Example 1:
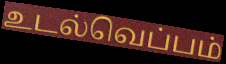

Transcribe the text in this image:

உடல்வெப்பம்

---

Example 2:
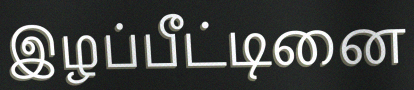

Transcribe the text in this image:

இழப்பீட்டினை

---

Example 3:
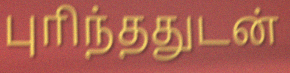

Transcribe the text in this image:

புரிந்ததுடன்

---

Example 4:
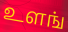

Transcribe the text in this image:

உளங்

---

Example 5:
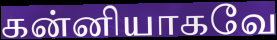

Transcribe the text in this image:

கன்னியாகவே